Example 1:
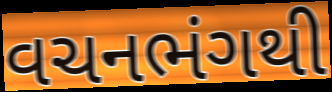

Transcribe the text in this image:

વચનભંગથી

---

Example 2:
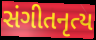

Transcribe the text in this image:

સંગીતનૃત્ય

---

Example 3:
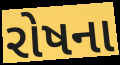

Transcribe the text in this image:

રોષના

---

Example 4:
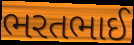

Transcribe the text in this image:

ભરતભાઈ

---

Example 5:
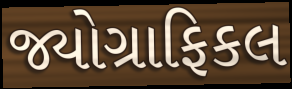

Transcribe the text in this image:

જ્યોગ્રાફિકલ